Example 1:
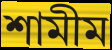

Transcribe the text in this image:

শামীম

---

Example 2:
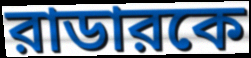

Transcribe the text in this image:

রাডারকে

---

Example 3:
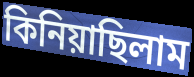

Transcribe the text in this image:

কিনিয়াছিলাম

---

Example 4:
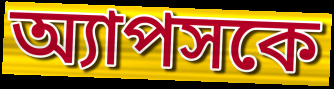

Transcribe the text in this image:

অ্যাপসকে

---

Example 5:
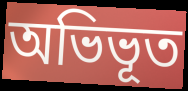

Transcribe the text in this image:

অভিভূত